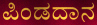
ಪಿಂಡದಾನ